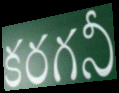
కరగనీ